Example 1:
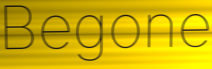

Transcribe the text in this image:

Begone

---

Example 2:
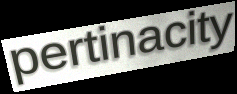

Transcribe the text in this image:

pertinacity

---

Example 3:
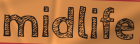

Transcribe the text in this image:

midlife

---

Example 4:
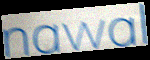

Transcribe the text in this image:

nawal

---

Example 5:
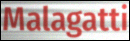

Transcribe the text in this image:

Malagatti